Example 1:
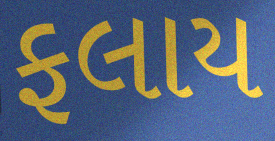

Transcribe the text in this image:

ફલાય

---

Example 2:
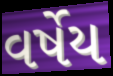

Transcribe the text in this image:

વર્ષેય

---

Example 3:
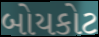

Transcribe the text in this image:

બોયકોટ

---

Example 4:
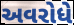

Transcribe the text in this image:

અવરોધે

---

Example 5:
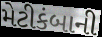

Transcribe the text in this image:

મેટીકંબાની